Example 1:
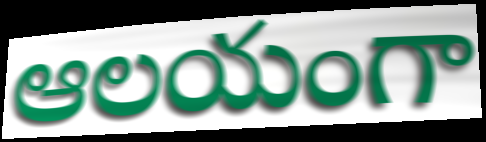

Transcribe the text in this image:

ఆలయంగా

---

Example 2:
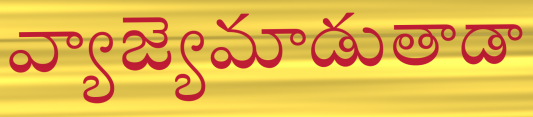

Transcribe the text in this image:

వ్యాజ్యెమాడుతాడా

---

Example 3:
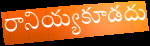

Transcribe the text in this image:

రానియ్యకూడదు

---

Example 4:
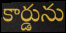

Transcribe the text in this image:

కార్డును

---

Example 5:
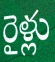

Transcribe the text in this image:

రైళ్లు